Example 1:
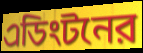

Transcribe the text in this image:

এডিংটনের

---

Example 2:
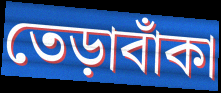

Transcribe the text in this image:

তেড়াবাঁকা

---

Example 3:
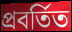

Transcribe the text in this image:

প্রবর্তিত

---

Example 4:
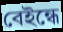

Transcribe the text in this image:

বেইন্ধে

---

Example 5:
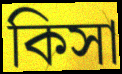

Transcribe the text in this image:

কিসা